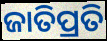
ଜାତିପ୍ରତି